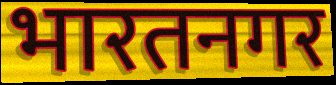
भारतनगर